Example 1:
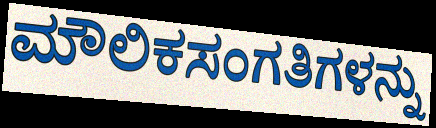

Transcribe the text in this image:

ಮೌಲಿಕಸಂಗತಿಗಳನ್ನು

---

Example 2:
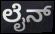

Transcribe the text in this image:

ಲೈನ್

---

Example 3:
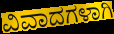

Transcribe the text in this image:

ವಿವಾದಗಳಾಗಿ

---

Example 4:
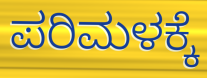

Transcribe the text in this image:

ಪರಿಮಳಕ್ಕೆ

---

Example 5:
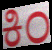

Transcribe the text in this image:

ಕಿಂ